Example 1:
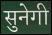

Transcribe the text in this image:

सुनेगी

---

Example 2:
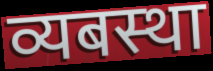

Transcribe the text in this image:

व्यबस्था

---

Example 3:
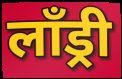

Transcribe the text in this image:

लॉंड्री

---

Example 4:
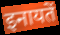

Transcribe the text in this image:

इनायतें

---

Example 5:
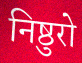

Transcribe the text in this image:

निष्ठुरो